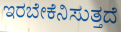
ಇರಬೇಕೆನಿಸುತ್ತದೆ